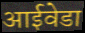
आईवेडा